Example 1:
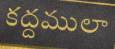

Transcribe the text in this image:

కద్దములా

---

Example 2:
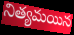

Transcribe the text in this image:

నిత్యమయిన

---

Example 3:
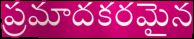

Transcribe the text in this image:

ప్రమాదకరమైన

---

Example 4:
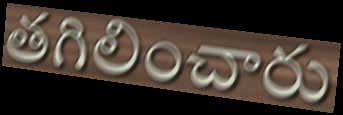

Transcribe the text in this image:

తగిలించారు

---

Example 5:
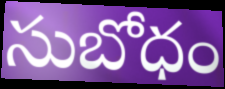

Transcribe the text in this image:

సుబోధం